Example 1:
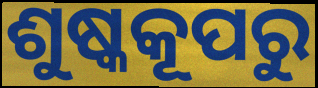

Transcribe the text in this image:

ଶୁଷ୍କକୂପରୁ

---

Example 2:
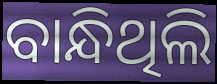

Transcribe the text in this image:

ବାନ୍ଧିଥିଲି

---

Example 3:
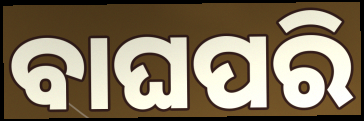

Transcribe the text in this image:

ବାଘପରି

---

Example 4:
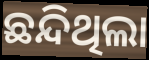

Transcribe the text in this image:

ଛନ୍ଦିଥିଲା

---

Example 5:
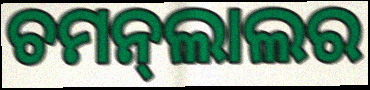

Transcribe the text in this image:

ଚମନ୍‍ଲାଲର